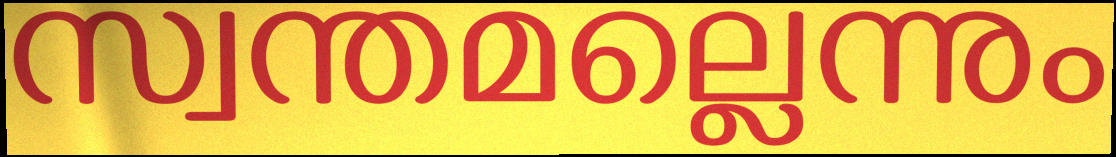
സ്വന്തമല്ലെന്നും